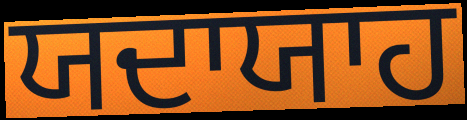
ਯਦਾਯਾਹ